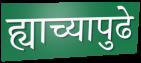
ह्याच्यापुढे